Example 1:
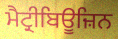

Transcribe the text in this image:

ਮੈਟ੍ਰੀਬਿਊਜ਼ਿਨ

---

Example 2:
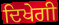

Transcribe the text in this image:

ਦਿਖੇਗੀ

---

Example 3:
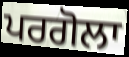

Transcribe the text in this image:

ਪਰਗੋਲਾ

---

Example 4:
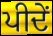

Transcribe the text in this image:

ਪੀਦੇਂ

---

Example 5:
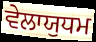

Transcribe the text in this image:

ਵੇਲਾਯੁਧਮ